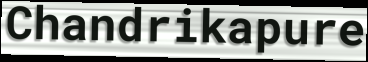
Chandrikapure